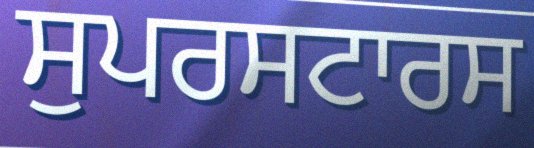
ਸੁਪਰਸਟਾਰਸ